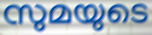
സുമയുടെ